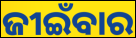
ଜୀଇଁବାର